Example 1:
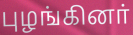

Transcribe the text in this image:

புழங்கினர்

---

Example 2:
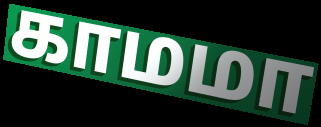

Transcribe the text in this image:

காமமா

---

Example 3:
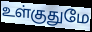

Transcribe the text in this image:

உள்குதுமே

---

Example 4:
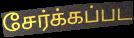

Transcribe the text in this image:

சேர்க்கப்பட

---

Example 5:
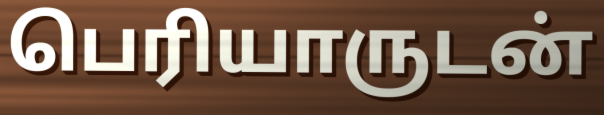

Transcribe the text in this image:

பெரியாருடன்